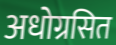
अधोग्रसित